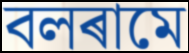
বলৰামে